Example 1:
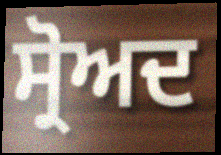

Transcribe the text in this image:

ਸ੍ਰੋਅਦ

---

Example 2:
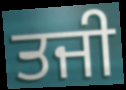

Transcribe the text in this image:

ਤਜੀ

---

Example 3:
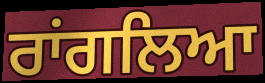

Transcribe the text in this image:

ਰਾਂਗਲਿਆ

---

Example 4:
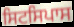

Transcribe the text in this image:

ਸਿਟਸਿਪਾਸ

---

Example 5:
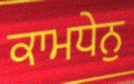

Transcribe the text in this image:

ਕਾਮਧੇਨੁ